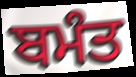
ਬਮੰਤ